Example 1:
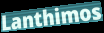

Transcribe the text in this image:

Lanthimos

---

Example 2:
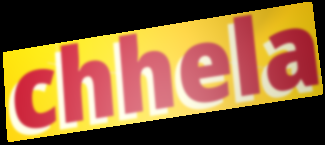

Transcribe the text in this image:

chhela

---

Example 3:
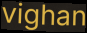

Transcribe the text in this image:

vighan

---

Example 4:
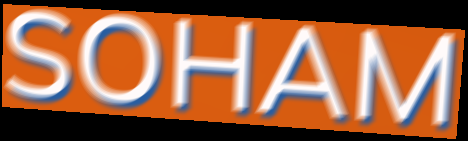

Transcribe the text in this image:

SOHAM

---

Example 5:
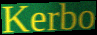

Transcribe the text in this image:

Kerbo